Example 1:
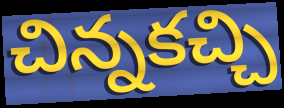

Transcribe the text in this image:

చిన్నకచ్చి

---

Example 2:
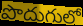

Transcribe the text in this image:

పొదుగులో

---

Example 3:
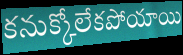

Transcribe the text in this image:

కనుక్కోలేకపోయాయి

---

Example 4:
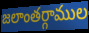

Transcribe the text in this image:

జలాంతర్గాముల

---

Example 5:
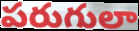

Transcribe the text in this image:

పరుగులా